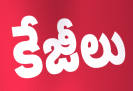
కేజీలు